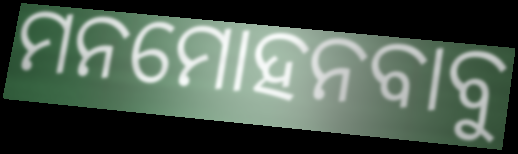
ମନମୋହନବାବୁ